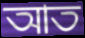
আত